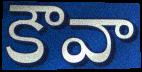
కౌవా